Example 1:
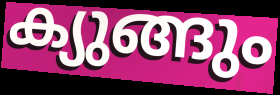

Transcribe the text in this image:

ക്യുങ്ങും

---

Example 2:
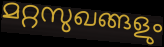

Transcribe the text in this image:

മറ്റസുഖങ്ങളും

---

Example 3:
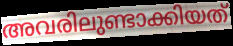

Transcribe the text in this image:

അവരിലുണ്ടാക്കിയത്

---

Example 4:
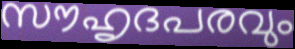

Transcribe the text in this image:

സൗഹൃദപരവും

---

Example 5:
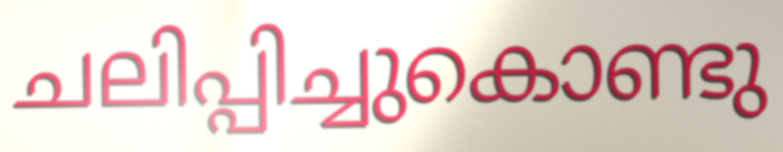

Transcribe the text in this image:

ചലിപ്പിച്ചുകൊണ്ടു